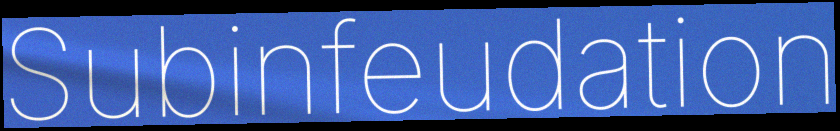
Subinfeudation